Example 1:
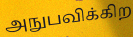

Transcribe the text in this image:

அநுபவிக்கிற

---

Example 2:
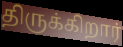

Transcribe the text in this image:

திருக்கிறார்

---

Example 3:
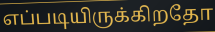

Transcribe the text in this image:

எப்படியிருக்கிறதோ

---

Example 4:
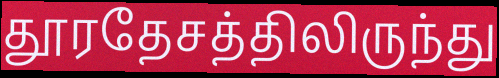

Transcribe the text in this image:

தூரதேசத்திலிருந்து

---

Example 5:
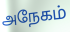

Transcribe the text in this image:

அநேகம்